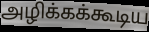
அழிக்கக்கூடிய